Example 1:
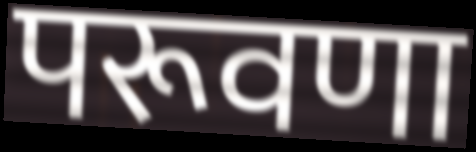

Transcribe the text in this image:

परूवणा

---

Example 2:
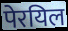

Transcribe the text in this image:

पेरयिल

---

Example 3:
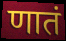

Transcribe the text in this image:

णातं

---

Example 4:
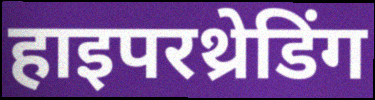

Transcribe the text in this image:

हाइपरथ्रेडिंग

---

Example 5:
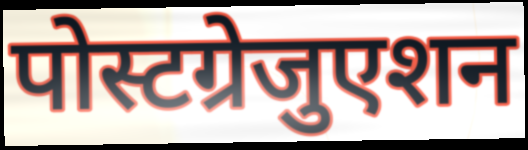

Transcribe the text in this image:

पोस्टग्रेजुएशन